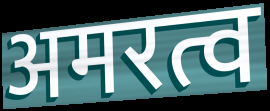
अमरत्व